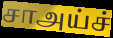
சாஅய்ச்